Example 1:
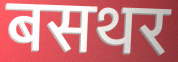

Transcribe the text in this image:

बसथर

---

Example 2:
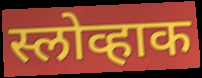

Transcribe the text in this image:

स्लोव्हाक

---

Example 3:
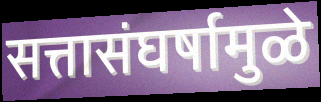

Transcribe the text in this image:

सत्तासंघर्षामुळे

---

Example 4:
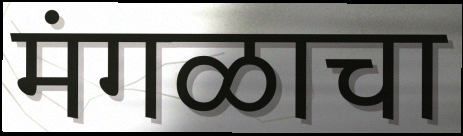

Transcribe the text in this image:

मंगळाचा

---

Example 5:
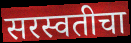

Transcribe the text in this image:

सरस्वतीचा